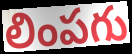
లింపగు